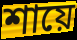
শায়ে